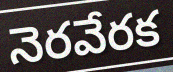
నెరవేరక